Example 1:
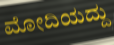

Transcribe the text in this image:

ಮೋದಿಯದ್ದು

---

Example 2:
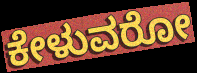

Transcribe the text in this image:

ಕೇಳುವರೋ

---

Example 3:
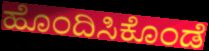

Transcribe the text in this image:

ಹೊಂದಿಸಿಕೊಂಡೆ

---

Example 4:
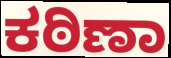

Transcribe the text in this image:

ಕಠಿಣಾ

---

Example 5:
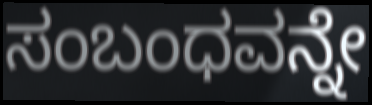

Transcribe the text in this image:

ಸಂಬಂಧವನ್ನೇ